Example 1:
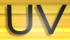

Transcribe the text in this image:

UV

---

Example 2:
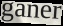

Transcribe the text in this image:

ganer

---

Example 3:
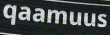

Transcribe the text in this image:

qaamuus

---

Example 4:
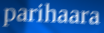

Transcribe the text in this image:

parihaara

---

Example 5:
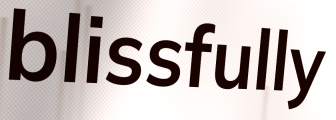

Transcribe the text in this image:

blissfully